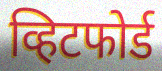
व्हिटफोर्ड